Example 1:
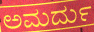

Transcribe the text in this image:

ಅಮರ್ದು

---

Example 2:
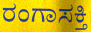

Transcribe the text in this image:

ರಂಗಾಸಕ್ತಿ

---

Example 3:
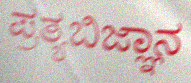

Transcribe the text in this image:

ಪ್ರತ್ಯಬಿಜ್ಞಾನ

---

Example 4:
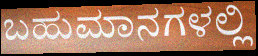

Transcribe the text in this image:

ಬಹುಮಾನಗಳಲ್ಲಿ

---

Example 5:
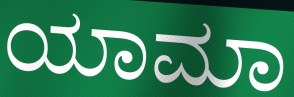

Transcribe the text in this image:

ಯಾಮಾ